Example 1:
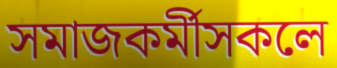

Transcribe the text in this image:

সমাজকৰ্মীসকলে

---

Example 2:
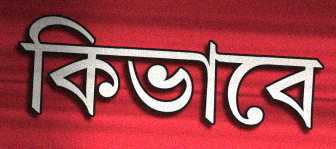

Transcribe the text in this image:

কিভাবে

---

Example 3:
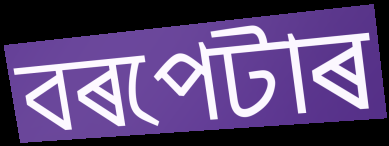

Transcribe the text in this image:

বৰপেটাৰ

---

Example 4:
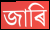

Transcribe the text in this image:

জাৰি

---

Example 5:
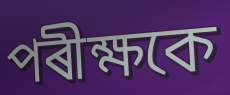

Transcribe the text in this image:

পৰীক্ষকে